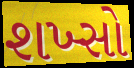
શખ્સો